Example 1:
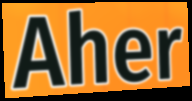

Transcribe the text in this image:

Aher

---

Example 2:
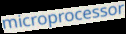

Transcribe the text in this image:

microprocessor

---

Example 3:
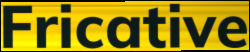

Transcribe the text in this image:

Fricative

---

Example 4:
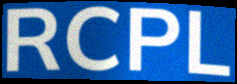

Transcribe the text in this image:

RCPL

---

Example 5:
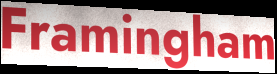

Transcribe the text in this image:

Framingham